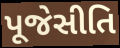
પૂજેસીતિ